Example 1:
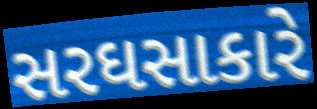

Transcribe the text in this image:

સરઘસાકારે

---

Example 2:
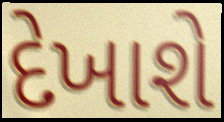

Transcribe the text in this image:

દેખાશે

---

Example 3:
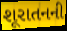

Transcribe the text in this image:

શૂરાતનની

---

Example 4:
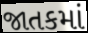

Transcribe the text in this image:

જાતકમાં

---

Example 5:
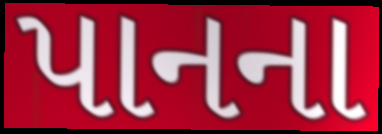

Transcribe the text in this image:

પાનના